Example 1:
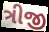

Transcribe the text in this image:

ત્રીજી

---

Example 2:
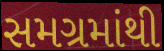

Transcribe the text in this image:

સમગ્રમાંથી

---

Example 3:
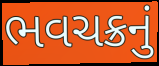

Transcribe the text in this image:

ભવચક્રનું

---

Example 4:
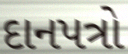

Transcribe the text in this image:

દાનપત્રો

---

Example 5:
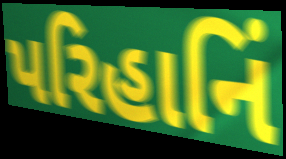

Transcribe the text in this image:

પરિહાનિં